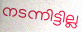
നടന്നിട്ടില്ല